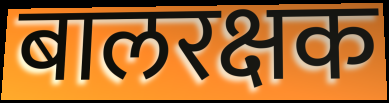
बालरक्षक